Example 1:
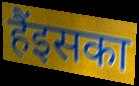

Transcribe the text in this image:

हैंइसका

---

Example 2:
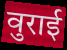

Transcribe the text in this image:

वुराई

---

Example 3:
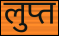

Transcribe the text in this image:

लुप्‍त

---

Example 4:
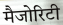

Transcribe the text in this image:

मैजोरिटी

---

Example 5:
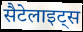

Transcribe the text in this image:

सैटेलाइट्स